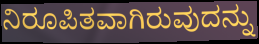
ನಿರೂಪಿತವಾಗಿರುವುದನ್ನು